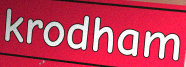
krodham